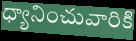
ధ్యానించువారికి